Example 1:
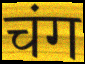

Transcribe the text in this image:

चंग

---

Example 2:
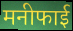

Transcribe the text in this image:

मनीफाई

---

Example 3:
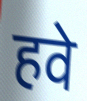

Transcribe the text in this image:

हवे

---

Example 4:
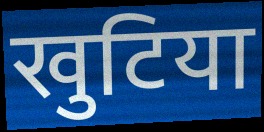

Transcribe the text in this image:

खुटिया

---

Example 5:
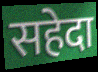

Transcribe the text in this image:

सहेदा